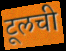
टूलची